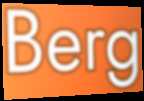
Berg